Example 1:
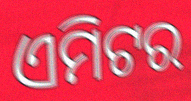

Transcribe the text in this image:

ଏମିଟର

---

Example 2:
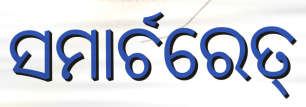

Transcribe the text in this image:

ସମାର୍ଚରେତ୍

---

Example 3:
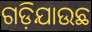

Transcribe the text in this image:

ଗଡ଼ିଯାଉଛ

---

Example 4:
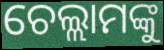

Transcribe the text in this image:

ଚେଲ୍ଲାମଙ୍କୁ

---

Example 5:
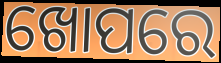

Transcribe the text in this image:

ଖୋପରେ